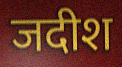
जदीश